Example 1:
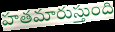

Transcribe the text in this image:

హతమారుస్తుంది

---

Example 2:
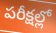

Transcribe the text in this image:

పరీక్షల్లో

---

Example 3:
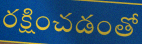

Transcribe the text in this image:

రక్షించడంతో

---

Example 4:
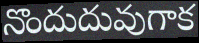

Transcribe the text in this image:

నొందుదువుగాక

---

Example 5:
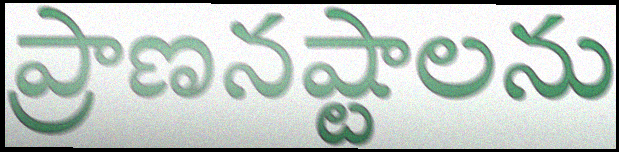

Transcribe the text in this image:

ప్రాణనష్టాలను